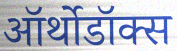
ऑर्थोडॉक्स